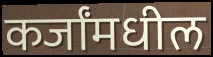
कर्जांमधील